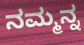
ನಮ್ಮನ್ನ